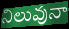
నిలువునా